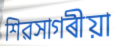
শিৱসাগৰীয়া